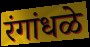
रंगांधळे